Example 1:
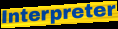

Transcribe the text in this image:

Interpreter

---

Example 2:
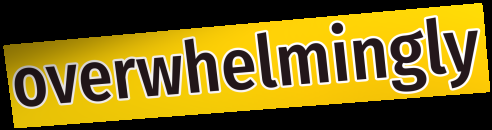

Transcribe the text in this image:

overwhelmingly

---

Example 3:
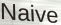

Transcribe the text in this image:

Naive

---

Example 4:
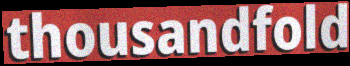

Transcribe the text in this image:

thousandfold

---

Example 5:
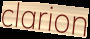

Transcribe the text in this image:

clarion